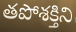
తపోశక్తిని